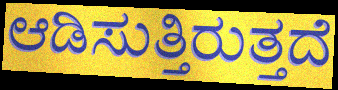
ಆಡಿಸುತ್ತಿರುತ್ತದೆ